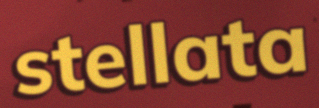
stellata